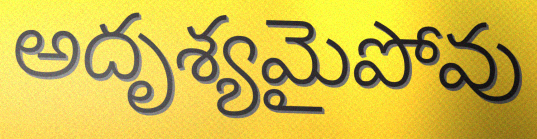
అదృశ్యమైపోవు